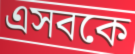
এসবকে